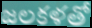
జలకళతో